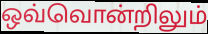
ஒவ்வொன்றிலும்